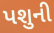
પશુની